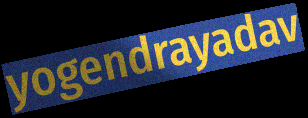
yogendrayadav